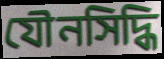
যৌনসিদ্ধি